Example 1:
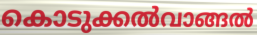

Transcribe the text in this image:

കൊടുക്കൽവാങ്ങൽ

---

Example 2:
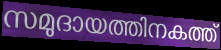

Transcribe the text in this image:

സമുദായത്തിനകത്ത്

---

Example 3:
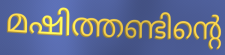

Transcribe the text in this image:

മഷിത്തണ്ടിന്റെ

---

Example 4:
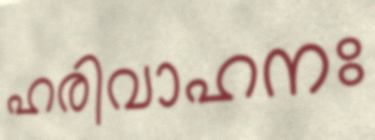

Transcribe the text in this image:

ഹരിവാഹനഃ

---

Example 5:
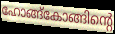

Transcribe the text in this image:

ഹോങ്ങ്കോങ്ങിന്റെ